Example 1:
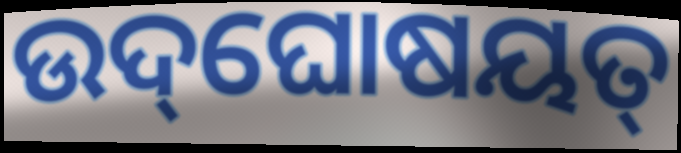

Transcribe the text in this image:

ଉଦ୍‌ଘୋଷୟତ୍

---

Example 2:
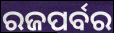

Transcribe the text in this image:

ରଜପର୍ବର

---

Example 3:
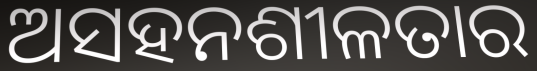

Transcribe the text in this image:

ଅସହନଶୀଳତାର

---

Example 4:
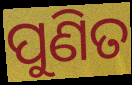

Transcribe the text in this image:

ପୁଣିତ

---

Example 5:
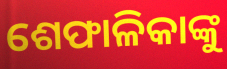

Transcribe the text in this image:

ଶେଫାଳିକାଙ୍କୁ